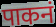
पाकनं